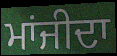
ਮਾਂਜੀਦਾ